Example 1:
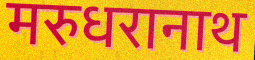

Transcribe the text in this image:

मरुधरानाथ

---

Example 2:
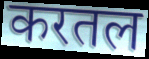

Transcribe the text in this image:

करतल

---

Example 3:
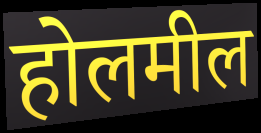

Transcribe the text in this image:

होलमील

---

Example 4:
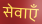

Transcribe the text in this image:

सेवाएँ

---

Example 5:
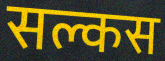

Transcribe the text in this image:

सल्कस